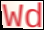
Wd